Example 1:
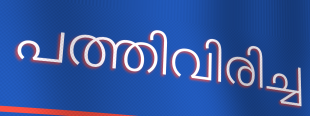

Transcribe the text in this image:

പത്തിവിരിച്ച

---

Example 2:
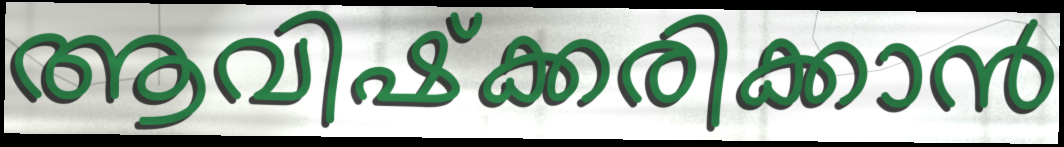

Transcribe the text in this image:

ആവിഷ്‌ക്കരിക്കാൻ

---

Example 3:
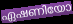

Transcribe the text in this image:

ഏഷണിയോ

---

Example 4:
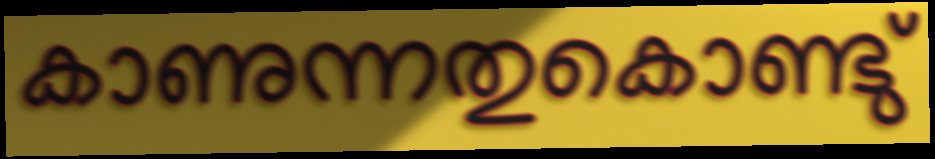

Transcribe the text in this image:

കാണുന്നതുകൊണ്ടു്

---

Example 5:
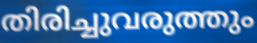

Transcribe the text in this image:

തിരിച്ചുവരുത്തും